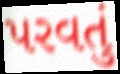
પરવતું